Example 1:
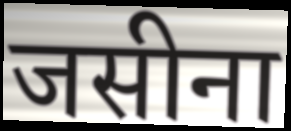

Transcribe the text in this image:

जसीना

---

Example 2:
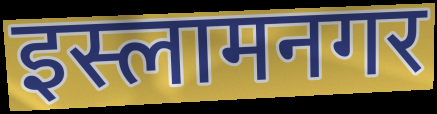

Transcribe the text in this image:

इस्लामनगर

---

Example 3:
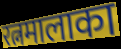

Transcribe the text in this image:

रत्नमालाका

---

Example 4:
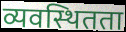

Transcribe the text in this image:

व्यवस्थितता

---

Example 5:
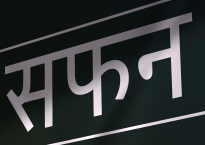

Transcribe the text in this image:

सफन